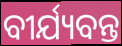
ବୀର୍ଯ୍ୟବନ୍ତ